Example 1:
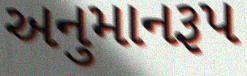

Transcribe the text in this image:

અનુમાનરૂપ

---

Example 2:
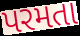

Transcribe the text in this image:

પરમતા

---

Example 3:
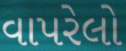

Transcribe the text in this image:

વાપરેલો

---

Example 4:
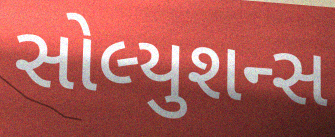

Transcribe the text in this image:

સોલ્યુશન્સ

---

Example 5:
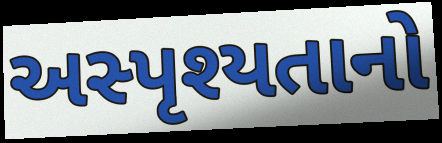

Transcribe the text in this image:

અસ્પૃશ્યતાનો